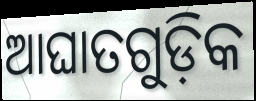
ଆଘାତଗୁଡ଼ିକ